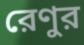
রেণুর